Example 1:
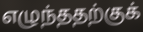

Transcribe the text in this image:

எழுந்ததற்குக்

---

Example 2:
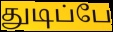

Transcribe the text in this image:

துடிப்பே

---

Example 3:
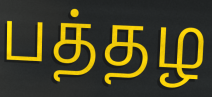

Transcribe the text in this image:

பத்தழ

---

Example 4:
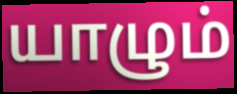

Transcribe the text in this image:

யாழும்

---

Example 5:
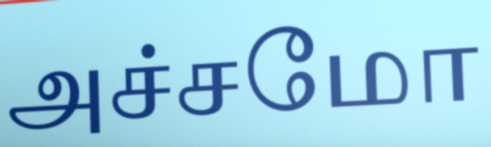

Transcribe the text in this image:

அச்சமோ